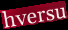
hversu